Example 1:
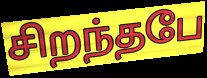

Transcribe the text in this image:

சிறந்தபே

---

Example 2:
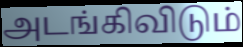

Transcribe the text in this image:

அடங்கிவிடும்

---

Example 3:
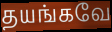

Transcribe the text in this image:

தயங்கவே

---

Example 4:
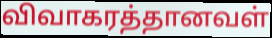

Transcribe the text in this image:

விவாகரத்தானவள்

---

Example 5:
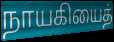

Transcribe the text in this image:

நாயகியைத்